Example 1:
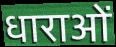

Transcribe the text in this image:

धाराओं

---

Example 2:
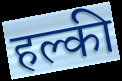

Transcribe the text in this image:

हल्की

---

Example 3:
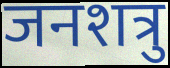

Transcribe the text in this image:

जनशत्रु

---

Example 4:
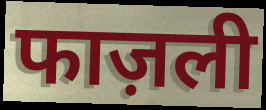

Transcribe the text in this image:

फाज़ली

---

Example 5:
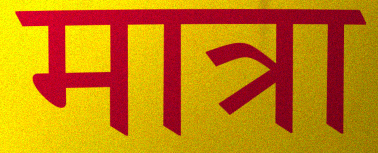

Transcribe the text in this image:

मात्रा